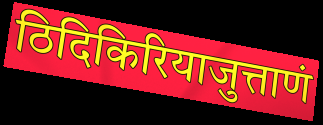
ठिदिकिरियाजुत्ताणं